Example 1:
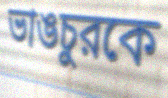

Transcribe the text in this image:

ভাঙচুরকে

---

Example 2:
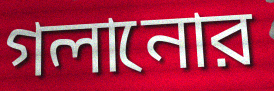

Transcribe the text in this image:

গলানোর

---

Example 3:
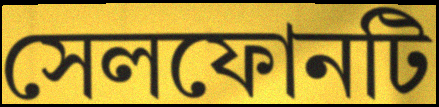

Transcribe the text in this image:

সেলফোনটি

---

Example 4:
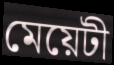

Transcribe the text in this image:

মেয়েটী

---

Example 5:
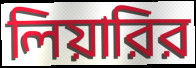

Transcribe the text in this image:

লিয়ারির